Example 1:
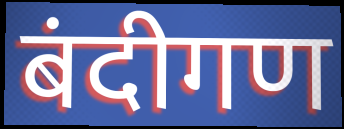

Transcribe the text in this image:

बंदीगण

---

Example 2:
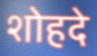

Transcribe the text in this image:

शोहदे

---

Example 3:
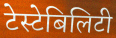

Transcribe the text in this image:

टेस्टेबिलिटी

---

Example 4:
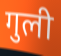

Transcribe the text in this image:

गुली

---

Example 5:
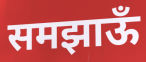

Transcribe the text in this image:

समझाऊँ